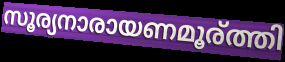
സൂര്യനാരായണമൂര്ത്തി